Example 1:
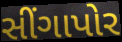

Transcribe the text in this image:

સીંગાપોર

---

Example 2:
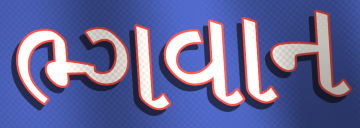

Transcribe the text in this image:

ભ્ગવાન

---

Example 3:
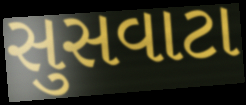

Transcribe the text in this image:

સુસવાટા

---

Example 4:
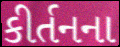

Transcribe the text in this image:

કીર્તનના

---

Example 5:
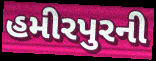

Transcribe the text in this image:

હમીરપુરની